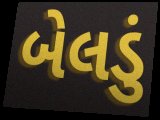
બેલડું